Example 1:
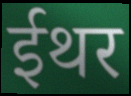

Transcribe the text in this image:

ईथर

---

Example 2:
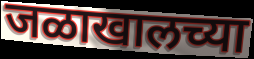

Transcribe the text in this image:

जळाखालच्या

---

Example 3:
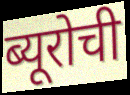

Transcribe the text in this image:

ब्यूरोची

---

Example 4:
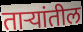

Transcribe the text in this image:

ताऱ्यांतील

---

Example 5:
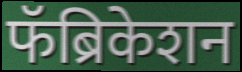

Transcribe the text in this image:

फॅब्रिकेशन